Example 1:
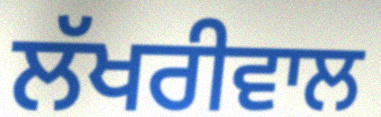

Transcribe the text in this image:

ਲੱਖਰੀਵਾਲ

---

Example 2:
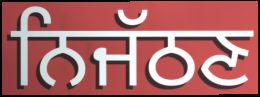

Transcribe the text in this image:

ਨਿਜੱਠਣ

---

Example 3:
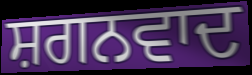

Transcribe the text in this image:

ਸ਼ਗਨਵਾਦ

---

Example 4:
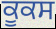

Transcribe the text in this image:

ਕੂਕਸ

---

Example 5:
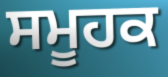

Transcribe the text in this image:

ਸਮੂਹਕ